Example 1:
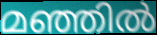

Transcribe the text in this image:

മഞ്ഞിൽ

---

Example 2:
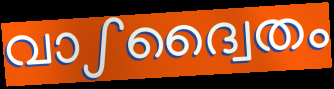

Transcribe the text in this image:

വാഽദ്വൈതം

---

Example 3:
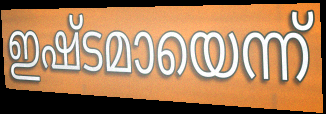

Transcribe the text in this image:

ഇഷ്ടമായെന്ന്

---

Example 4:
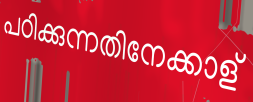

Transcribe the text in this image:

പഠിക്കുന്നതിനേക്കാള്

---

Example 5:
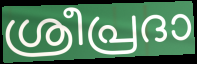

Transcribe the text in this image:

ശ്രീപ്രദാ